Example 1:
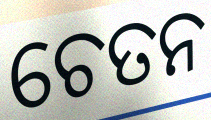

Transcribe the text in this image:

ଚେତନ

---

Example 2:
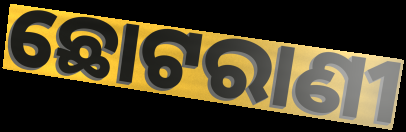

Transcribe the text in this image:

ଛୋଟରାଣୀ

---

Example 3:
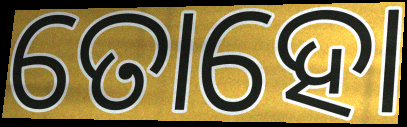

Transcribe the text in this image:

ତୋହୋ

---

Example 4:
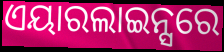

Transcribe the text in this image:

ଏୟାରଲାଇନ୍ସରେ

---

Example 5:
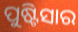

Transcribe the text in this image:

ପୁଷ୍ଟିସାର